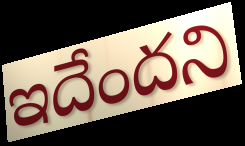
ఇదేందని